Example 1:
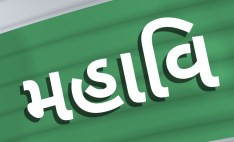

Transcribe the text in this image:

મહાવિ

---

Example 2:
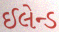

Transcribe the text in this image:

ઈલેન્ડ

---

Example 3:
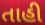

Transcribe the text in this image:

તાહી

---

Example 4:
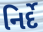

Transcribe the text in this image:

નિર્દે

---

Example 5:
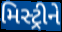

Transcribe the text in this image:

મિસ્ટ્રીને